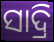
ସାଦ୍ରି